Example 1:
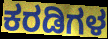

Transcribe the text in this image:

ಕರಡಿಗಳ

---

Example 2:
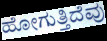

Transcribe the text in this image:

ಹೋಗುತ್ತಿದೆವು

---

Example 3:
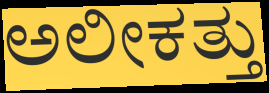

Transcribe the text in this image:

ಅಲೀಕತ್ತು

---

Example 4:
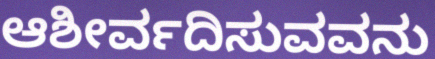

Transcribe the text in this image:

ಆಶೀರ್ವದಿಸುವವನು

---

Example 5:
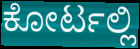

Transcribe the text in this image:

ಕೋರ್ಟಲ್ಲಿ